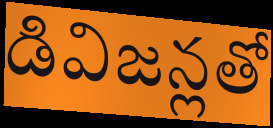
డివిజన్లతో